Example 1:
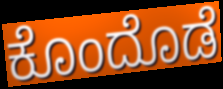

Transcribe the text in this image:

ಕೊಂದೊಡೆ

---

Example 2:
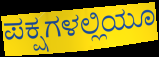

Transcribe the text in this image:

ಪಕ್ಷಗಳಲ್ಲಿಯೂ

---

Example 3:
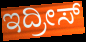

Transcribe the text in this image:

ಇದ್ರೀಸ್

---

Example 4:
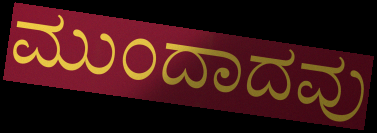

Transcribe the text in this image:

ಮುಂದಾದವು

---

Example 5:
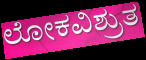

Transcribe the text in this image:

ಲೋಕವಿಶ್ರುತ